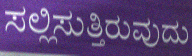
ಸಲ್ಲಿಸುತ್ತಿರುವುದು